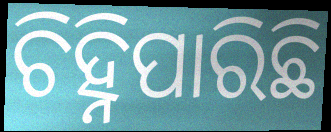
ଚିହ୍ନିପାରିଛି